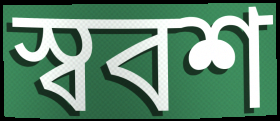
স্ববশ